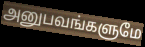
அனுபவங்களுமே